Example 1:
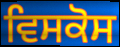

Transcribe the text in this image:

ਵਿਸਕੋਸ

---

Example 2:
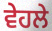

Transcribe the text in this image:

ਵੇਹਲੇ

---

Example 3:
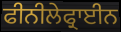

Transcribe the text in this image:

ਫੀਨੀਲੇਫ੍ਰਾਈਨ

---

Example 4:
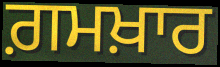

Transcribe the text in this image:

ਗ਼ਮਖ਼ਾਰ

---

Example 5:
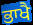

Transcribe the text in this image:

ਭਾਖੈ